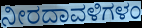
ನೀರದಾವಳಿಗಳಂ